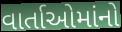
વાર્તાઓમાંનો